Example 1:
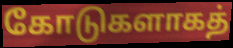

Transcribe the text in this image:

கோடுகளாகத்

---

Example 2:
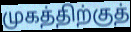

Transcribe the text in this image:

முகத்திற்குத்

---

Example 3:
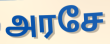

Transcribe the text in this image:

அரசே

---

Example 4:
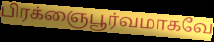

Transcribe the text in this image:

பிரக்ஞைபூர்வமாகவே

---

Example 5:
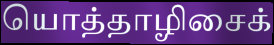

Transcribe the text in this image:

யொத்தாழிசைக்